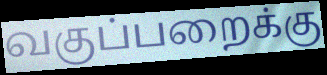
வகுப்பறைக்கு